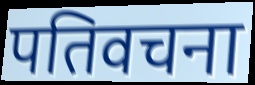
पतिवचना